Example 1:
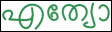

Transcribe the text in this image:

എത്യോ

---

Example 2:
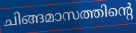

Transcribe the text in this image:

ചിങ്ങമാസത്തിന്റെ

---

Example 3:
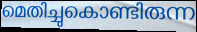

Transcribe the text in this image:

മെതിച്ചുകൊണ്ടിരുന്ന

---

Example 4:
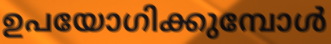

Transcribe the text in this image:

ഉപയോഗിക്കുമ്പോൾ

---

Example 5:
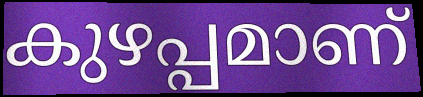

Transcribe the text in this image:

കുഴപ്പമാണ്